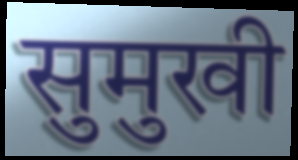
सुमुखी